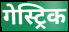
गेस्ट्रिक